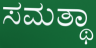
ಸಮತ್ಥಾ